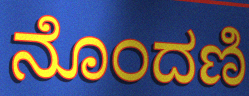
ನೊಂದಣಿ